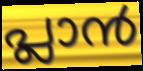
പ്ലാൻ